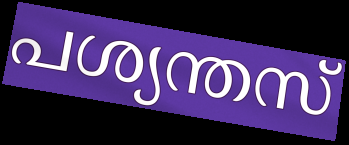
പശ്യന്തസ്